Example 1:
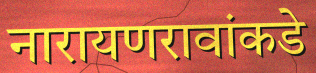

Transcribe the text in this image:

नारायणरावांकडे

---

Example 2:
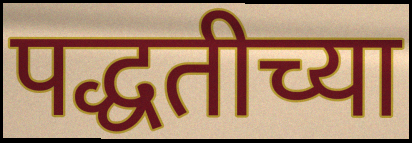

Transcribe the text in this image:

पद्धतीच्या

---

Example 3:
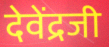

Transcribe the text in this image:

देवेंद्रजी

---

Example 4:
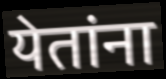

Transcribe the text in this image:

येतांना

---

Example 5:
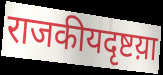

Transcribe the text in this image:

राजकीयदृष्टय़ा